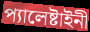
প্যালেষ্টাইনী